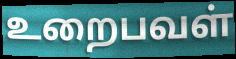
உறைபவள்